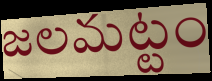
జలమట్టం